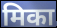
मिका